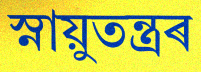
স্নায়ুতন্ত্ৰৰ